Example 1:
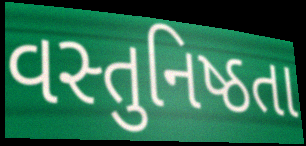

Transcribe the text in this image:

વસ્તુનિષ્ઠતા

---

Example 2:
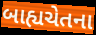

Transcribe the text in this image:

બાહ્યચેતના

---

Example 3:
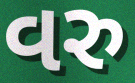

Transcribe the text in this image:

વરુ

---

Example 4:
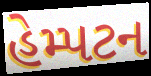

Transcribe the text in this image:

હેમ્પટન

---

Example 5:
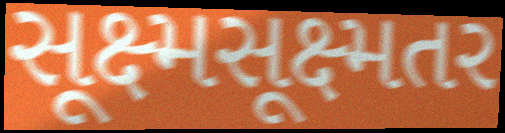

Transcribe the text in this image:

સૂક્ષ્મસૂક્ષ્મતર